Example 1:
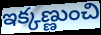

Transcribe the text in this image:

ఇక్కణ్ణుంచి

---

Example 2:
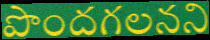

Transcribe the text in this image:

పొందగలనని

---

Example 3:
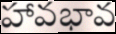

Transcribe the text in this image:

హావభావ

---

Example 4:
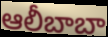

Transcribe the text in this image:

ఆలీబాబా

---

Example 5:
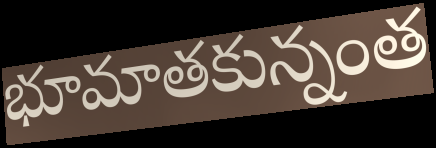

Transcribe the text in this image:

భూమాతకున్నంత